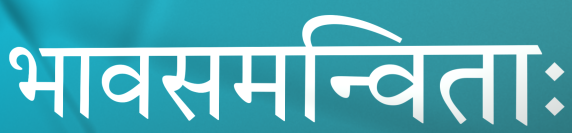
भावसमन्विताः